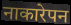
नाकारेपन